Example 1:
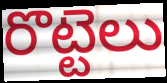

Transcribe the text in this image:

రొట్టెలు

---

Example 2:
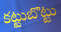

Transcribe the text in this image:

కట్టుబొట్టు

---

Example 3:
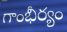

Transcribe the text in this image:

గాంభీర్యం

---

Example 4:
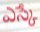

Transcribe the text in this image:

ఎస్కే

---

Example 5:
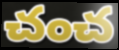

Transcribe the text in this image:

చంచ